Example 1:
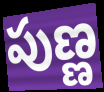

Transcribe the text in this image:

పుణ్ణ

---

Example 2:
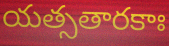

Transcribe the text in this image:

యత్సతారకాః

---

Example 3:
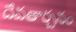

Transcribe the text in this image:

దేవతార్చనం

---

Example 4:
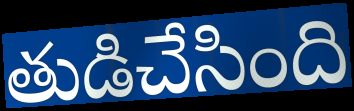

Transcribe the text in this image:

తుడిచేసింది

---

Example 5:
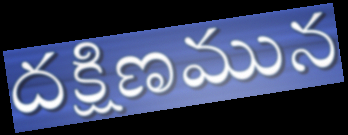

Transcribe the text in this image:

దక్షిణమున